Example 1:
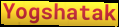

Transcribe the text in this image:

Yogshatak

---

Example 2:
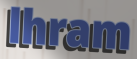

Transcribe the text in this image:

lhram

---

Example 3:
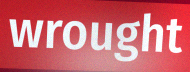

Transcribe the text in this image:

wrought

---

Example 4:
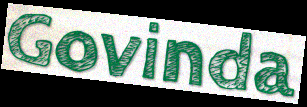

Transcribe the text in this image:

Govinda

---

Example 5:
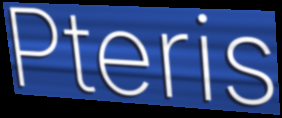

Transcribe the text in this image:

Pteris